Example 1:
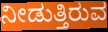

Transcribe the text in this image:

ನೀಡುತ್ತಿರುವ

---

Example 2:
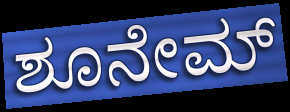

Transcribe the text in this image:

ಶೂನೇಮ್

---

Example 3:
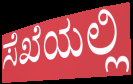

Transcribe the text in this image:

ಸೆಖೆಯಲ್ಲಿ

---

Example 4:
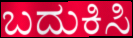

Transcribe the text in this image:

ಬದುಕಿಸಿ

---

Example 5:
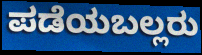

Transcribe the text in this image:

ಪಡೆಯಬಲ್ಲರು